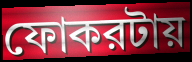
ফোকরটায়